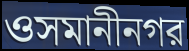
ওসমানীনগর